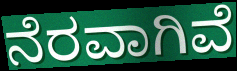
ನೆರವಾಗಿವೆ